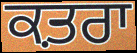
ਕ਼ਤਰਾ